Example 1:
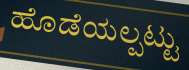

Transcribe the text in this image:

ಹೊಡೆಯಲ್ಪಟ್ಟು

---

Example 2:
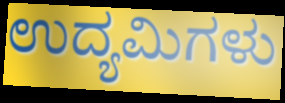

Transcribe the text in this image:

ಉದ್ಯಮಿಗಳು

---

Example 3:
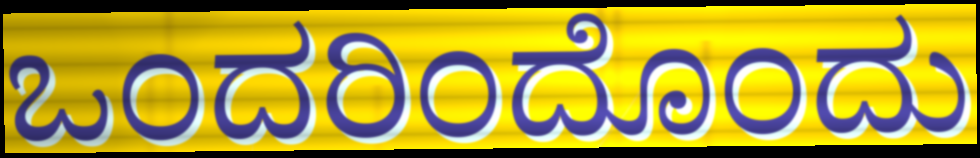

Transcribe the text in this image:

ಒಂದರಿಂದೊಂದು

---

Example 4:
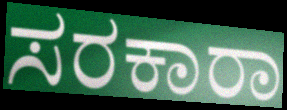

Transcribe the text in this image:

ಸರಕಾರಾ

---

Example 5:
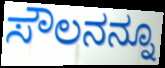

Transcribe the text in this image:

ಸೌಲನನ್ನೂ